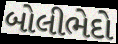
બોલીભેદો